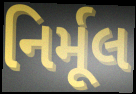
નિર્મૂલ